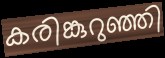
കരിങ്കുറുഞ്ഞി